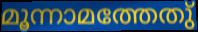
മൂന്നാമത്തേതു്